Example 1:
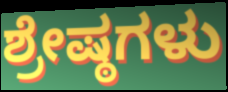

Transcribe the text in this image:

ಶ್ರೇಷ್ಠಗಳು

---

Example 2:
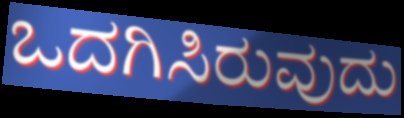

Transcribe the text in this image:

ಒದಗಿಸಿರುವುದು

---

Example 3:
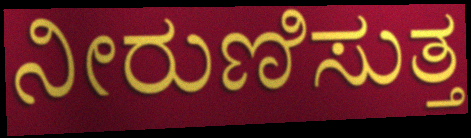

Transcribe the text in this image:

ನೀರುಣಿಸುತ್ತ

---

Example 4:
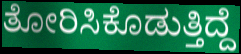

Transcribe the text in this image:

ತೋರಿಸಿಕೊಡುತ್ತಿದ್ದೆ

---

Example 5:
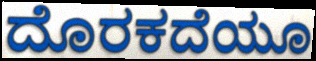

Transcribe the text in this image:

ದೊರಕದೆಯೂ